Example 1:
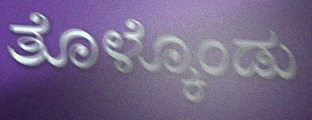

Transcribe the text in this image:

ತೊಳ್ಕೊಂಡು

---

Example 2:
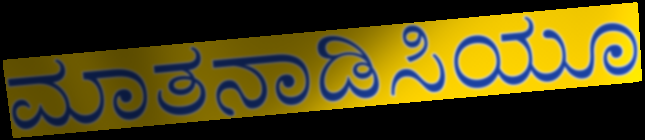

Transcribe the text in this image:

ಮಾತನಾಡಿಸಿಯೂ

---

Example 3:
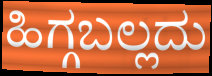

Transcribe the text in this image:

ಹಿಗ್ಗಬಲ್ಲದು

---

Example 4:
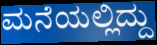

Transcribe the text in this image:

ಮನೆಯಲ್ಲಿದ್ದು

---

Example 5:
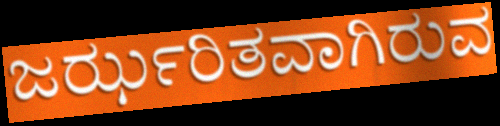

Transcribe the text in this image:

ಜರ್ಝರಿತವಾಗಿರುವ